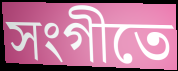
সংগীতে